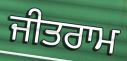
ਜੀਤਰਾਮ